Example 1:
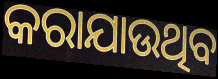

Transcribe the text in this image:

କରାଯାଉଥିବ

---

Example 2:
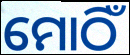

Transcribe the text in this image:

ମୋଠିଁ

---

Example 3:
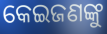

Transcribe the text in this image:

କେଇଜଣଙ୍କୁ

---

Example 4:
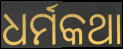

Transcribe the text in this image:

ଧର୍ମକଥା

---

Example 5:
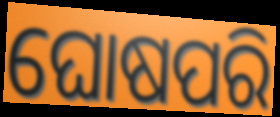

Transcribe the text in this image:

ଘୋଷପରି